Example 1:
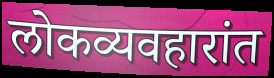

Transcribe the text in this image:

लोकव्यवहारांत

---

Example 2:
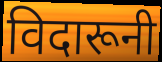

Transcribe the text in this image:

विदारूनी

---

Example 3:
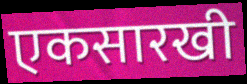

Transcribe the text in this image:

एकसारखी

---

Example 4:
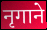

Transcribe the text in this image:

नृगाने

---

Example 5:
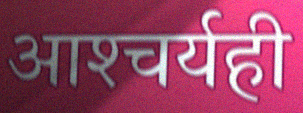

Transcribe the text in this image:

आश्‍चर्यही